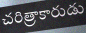
చరిత్రాకారుడు